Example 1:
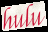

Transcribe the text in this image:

hulu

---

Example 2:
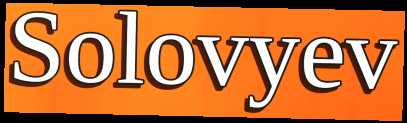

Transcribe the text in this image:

Solovyev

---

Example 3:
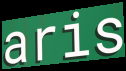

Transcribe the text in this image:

aris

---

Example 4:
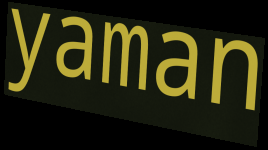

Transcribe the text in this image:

yaman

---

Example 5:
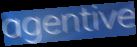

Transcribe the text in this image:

agentive